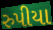
રુપીયા